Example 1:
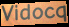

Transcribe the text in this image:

Vidocq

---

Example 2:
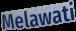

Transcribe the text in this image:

Melawati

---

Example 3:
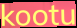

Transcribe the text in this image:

kootu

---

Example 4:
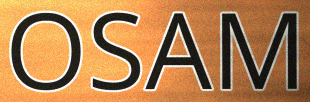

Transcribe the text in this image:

OSAM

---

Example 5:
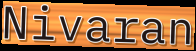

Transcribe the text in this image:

Nivaran